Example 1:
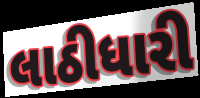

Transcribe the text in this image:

લાઠીધારી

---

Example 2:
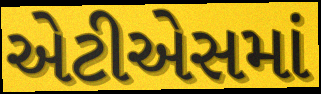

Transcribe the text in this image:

એટીએસમાં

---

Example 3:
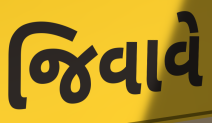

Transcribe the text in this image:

જિવાવે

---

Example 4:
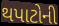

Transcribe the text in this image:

થપાટોની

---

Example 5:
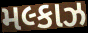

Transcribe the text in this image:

મલ્કાઝ